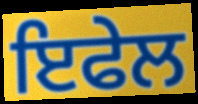
ਇਫੇਲ